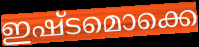
ഇഷ്ടമൊക്കെ